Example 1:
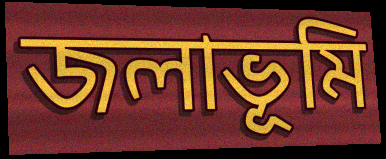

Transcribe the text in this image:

জলাভূমি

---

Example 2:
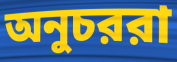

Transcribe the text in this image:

অনুচররা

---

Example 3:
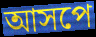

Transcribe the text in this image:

আসপে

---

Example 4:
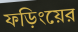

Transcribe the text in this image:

ফড়িংয়ের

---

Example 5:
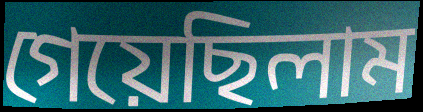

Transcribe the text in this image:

গেয়েছিলাম